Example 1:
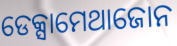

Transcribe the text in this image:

ଡେକ୍ସାମେଥାଜୋନ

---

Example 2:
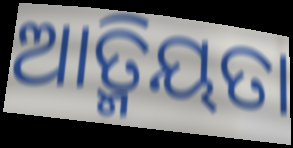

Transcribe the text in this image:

ଆତ୍ମିୟତା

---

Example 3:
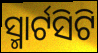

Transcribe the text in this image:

ସ୍ମାର୍ଟସିଟି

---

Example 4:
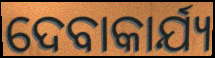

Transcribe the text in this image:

ଦେବାକାର୍ଯ୍ୟ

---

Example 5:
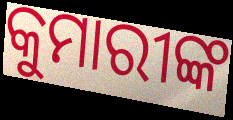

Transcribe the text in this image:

କୁମାରୀଙ୍କ